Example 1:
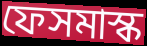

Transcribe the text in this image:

ফেসমাস্ক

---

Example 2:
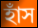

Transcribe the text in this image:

হাঁস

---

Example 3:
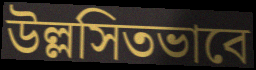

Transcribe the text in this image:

উল্লসিতভাবে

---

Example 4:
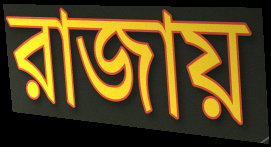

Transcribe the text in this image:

রাজায়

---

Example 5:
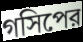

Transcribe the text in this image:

গসিপের